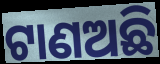
ଟାଣଅଛି